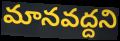
మానవద్దని